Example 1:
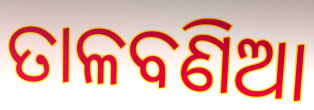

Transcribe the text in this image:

ତାଳବଣିଆ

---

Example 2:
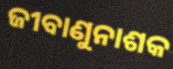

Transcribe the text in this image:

ଜୀବାଣୁନାଶକ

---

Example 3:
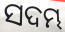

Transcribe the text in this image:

ସଦମ୍ଭ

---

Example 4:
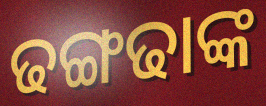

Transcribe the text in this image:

ଢଙ୍ଗଢାଙ୍କ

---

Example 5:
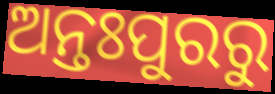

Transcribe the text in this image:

ଅନ୍ତଃପୁରରୁ